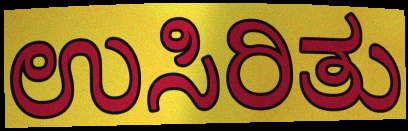
ಉಸಿರಿತು